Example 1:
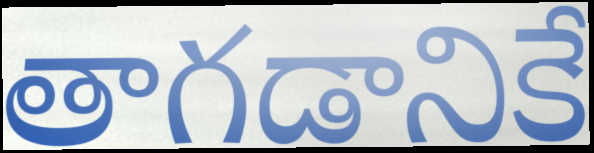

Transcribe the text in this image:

తాగడానికే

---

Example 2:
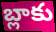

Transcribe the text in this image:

బ్లాకు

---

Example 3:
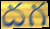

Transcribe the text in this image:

దగ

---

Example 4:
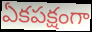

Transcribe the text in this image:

ఏకపక్షంగా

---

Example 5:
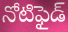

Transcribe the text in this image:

నోటిఫైడ్